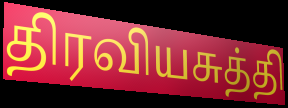
திரவியசுத்தி